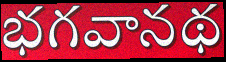
భగవానథ